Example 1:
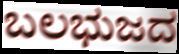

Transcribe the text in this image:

ಬಲಭುಜದ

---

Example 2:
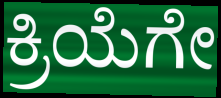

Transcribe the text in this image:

ಕ್ರಿಯೆಗೇ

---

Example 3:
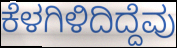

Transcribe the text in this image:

ಕೆಳಗಿಳಿದಿದ್ದೆವು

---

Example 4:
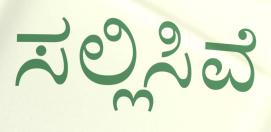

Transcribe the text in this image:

ಸಲ್ಲಿಸಿವೆ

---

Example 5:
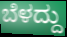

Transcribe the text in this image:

ಬೆಳದ್ದು